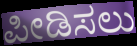
ಪೀಡಿಸಲು